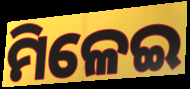
ମିଳେଇ